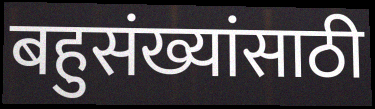
बहुसंख्यांसाठी